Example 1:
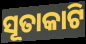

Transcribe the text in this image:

ସୂତାକାଟି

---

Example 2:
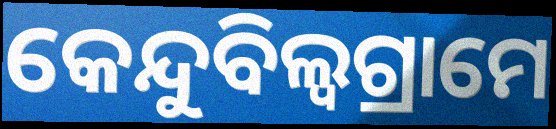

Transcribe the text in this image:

କେନ୍ଦୁବିଲ୍ଵଗ୍ରାମେ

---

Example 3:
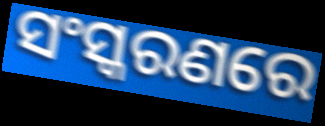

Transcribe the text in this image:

ସଂସ୍କରଣରେ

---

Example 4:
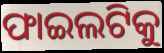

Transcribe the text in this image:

ଫାଇଲଟିକୁ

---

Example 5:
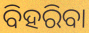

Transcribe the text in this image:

ବିହରିବା